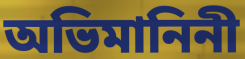
অভিমানিনী